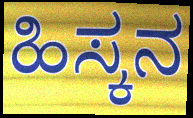
ಹಿಸ್ಕನ